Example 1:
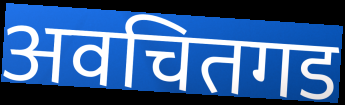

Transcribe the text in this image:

अवचितगड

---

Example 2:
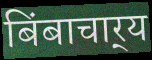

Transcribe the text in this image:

बिंबाचार्य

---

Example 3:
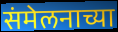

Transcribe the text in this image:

संमेलनाच्या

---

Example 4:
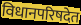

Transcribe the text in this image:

विधानपरिषदेत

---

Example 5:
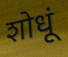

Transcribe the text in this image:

शोधूं